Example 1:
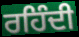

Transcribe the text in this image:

ਰਹਿੰਦੀ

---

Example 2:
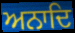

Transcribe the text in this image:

ਅਨਾਦਿ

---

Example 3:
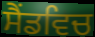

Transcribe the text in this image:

ਸੈਂਡਵਿਚ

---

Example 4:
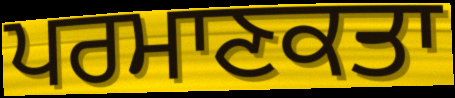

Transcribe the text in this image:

ਪਰਮਾਣਕਤਾ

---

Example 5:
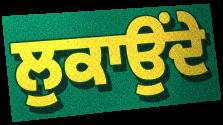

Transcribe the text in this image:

ਲੁਕਾਉਂਦੇ